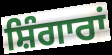
ਸ਼ਿੰਗਾਰਾਂ